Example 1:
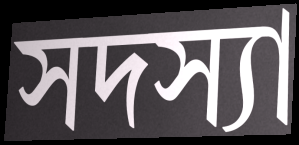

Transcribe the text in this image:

সদস্যা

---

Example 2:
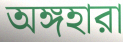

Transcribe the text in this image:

অঙ্গহারা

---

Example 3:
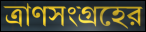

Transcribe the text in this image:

ত্রাণসংগ্রহের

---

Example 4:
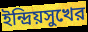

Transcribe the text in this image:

ইন্দ্রিয়সুখের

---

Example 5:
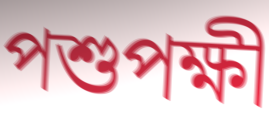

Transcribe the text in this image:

পশুপক্ষী